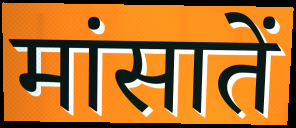
मांसातें